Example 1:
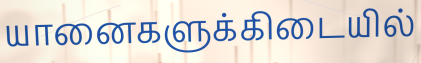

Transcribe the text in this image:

யானைகளுக்கிடையில்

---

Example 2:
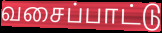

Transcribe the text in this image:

வசைப்பாட்டு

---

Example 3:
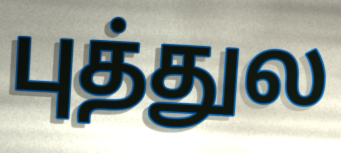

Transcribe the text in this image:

புத்துல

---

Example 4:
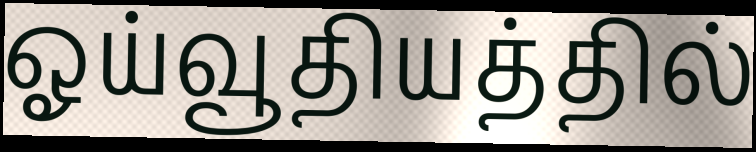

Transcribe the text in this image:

ஓய்வூதியத்தில்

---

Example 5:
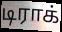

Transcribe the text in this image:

டிராக்